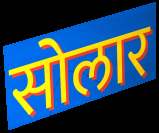
सोलार